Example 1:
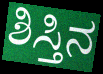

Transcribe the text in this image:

ಶಿಸ್ತಿನ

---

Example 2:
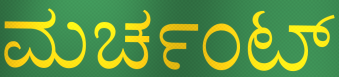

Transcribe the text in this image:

ಮರ್ಚಂಟ್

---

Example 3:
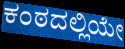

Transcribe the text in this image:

ಕಂಠದಲ್ಲಿಯೇ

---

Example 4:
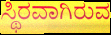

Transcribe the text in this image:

ಸ್ಥಿರವಾಗಿರುವ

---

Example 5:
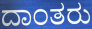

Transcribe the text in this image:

ದಾಂತರು